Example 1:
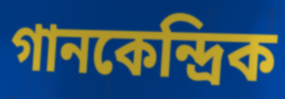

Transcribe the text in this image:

গানকেন্দ্রিক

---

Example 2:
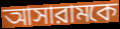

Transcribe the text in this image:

আসারামকে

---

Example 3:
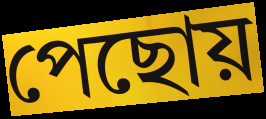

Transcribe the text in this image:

পেছোয়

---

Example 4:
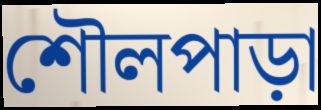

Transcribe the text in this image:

শৌলপাড়া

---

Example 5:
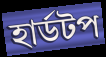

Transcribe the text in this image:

হার্ডটপ